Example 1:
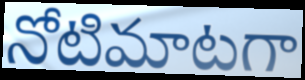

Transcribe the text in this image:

నోటిమాటగా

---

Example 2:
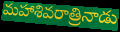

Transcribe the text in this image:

మహాశివరాత్రినాడు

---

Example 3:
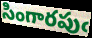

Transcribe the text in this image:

సింగారపుఁ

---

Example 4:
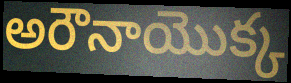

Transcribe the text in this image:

అరౌనాయొక్క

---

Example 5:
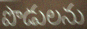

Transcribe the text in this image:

పొడులను